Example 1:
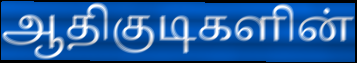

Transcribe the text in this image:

ஆதிகுடிகளின்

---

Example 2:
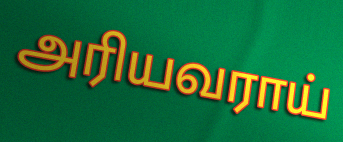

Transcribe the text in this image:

அரியவராய்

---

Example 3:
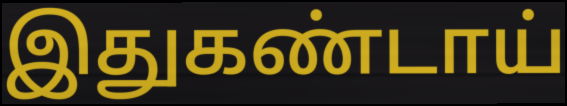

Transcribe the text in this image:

இதுகண்டாய்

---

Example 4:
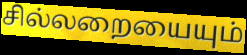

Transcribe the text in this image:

சில்லறையையும்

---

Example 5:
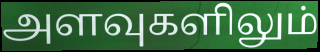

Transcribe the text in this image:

அளவுகளிலும்